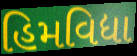
હિમવિદ્યા